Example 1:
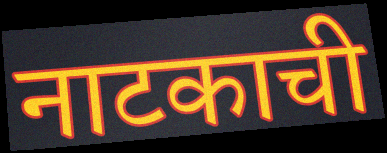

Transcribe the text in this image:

नाटकाची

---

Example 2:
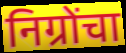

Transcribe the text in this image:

निग्रोंचा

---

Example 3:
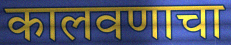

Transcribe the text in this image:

कालवणाचा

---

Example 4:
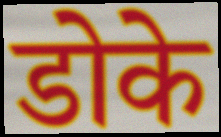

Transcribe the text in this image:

डोके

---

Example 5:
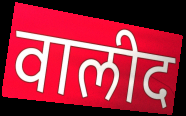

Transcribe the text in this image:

वालीद